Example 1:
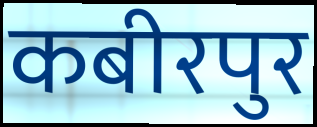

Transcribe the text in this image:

कबीरपुर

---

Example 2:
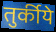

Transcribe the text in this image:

तुर्कीये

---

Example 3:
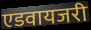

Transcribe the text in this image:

एडवायजरी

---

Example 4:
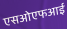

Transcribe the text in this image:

एसओएफआई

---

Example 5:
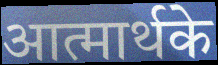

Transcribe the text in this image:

आत्मार्थके